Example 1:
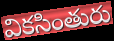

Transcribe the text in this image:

వికసింతురు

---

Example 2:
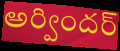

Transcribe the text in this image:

అర్విందర్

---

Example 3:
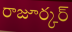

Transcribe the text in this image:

రాజూర్కర్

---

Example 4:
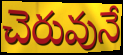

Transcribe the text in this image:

చెరువునే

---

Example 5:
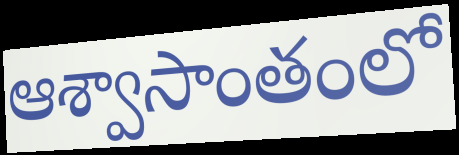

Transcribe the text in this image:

ఆశ్వాసాంతంలో